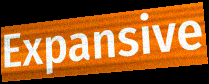
Expansive